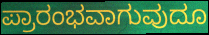
ಪ್ರಾರಂಭವಾಗುವುದೂ